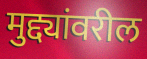
मुद्द्यांवरील